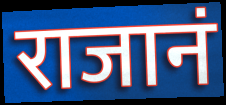
राजानं